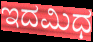
ಇದಮಿಧ